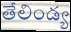
తేలిండ్య